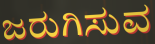
ಜರುಗಿಸುವ